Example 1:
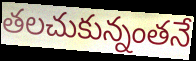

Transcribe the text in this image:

తలచుకున్నంతనే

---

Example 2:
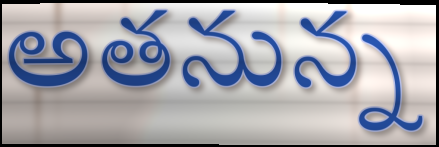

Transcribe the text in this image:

అతనున్న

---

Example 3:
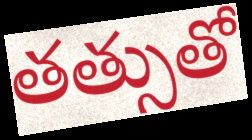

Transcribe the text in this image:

తత్సుతో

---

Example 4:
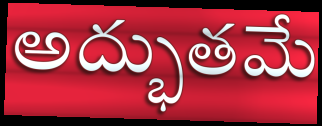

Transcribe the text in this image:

అద్భుతమే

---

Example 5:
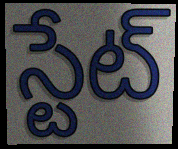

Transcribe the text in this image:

స్టేట్